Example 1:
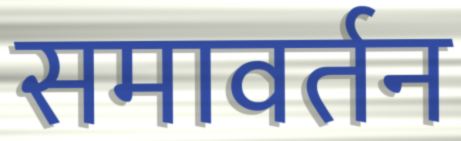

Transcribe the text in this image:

समावर्तन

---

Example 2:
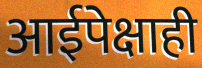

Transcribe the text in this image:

आईपेक्षाही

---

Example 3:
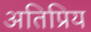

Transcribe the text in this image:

अतिप्रिय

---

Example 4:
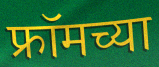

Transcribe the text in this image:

फ्रॉमच्या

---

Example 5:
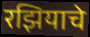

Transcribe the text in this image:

रझियाचे